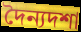
দৈন্যদশা